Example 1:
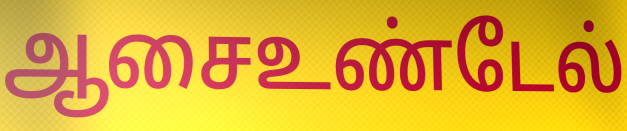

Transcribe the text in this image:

ஆசைஉண்டேல்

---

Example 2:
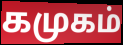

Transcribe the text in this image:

கமுகம்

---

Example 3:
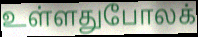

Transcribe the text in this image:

உள்ளதுபோலக்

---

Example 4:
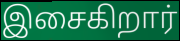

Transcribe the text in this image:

இசைகிறார்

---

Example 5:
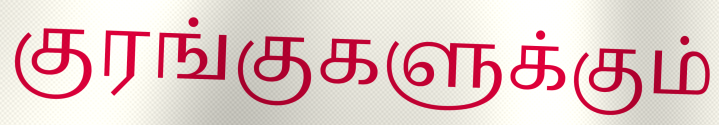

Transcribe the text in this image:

குரங்குகளுக்கும்